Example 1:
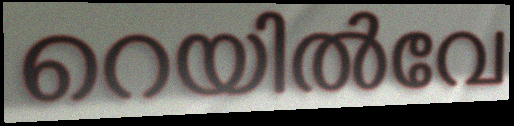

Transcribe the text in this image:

റെയിൽവേ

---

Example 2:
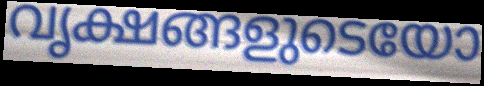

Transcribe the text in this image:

വൃക്ഷങ്ങളുടെയോ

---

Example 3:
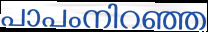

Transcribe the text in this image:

പാപംനിറഞ്ഞ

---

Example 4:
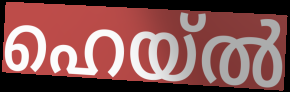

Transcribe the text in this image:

ഹെയ്ൽ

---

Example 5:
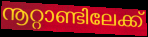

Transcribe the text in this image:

നൂറ്റാണ്ടിലേക്ക്